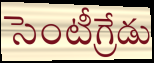
సెంటీగ్రేడు